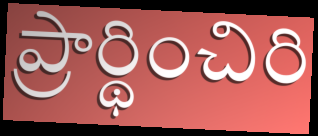
ప్రార్థించిరి